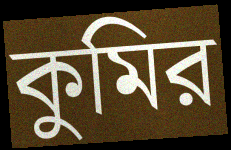
কুমির